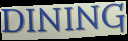
DINING